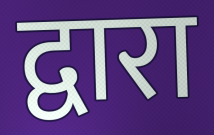
द्वारा